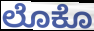
ಲೊಕೊ